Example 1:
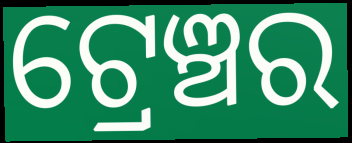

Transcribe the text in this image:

ଟ୍ରେଞ୍ଚର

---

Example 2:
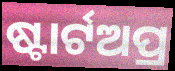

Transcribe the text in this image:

ଷ୍ଟାର୍ଟଅପ୍ର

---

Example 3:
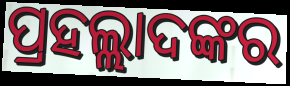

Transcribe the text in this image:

ପ୍ରହଲ୍ଲାଦଙ୍କର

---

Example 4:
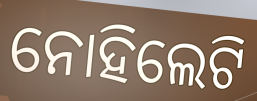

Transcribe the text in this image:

ନୋହିଲେଟି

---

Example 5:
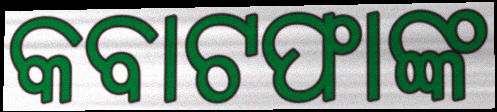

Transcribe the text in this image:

କବାଟଫାଙ୍କ